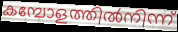
കമ്പോളത്തിൽനിന്ന്